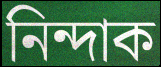
নিন্দাক